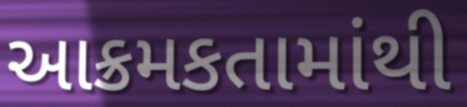
આક્રમકતામાંથી